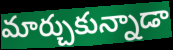
మార్చుకున్నాడా